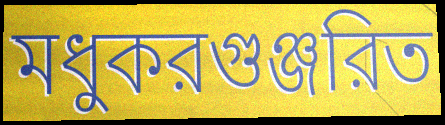
মধুকরগুঞ্জরিত